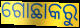
ଗୋଛାକରୁ